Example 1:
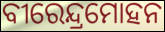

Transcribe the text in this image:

ବୀରେନ୍ଦ୍ରମୋହନ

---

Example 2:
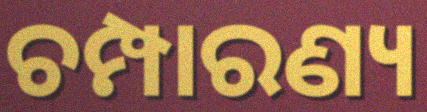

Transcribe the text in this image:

ଚମ୍ପାରଣ୍ୟ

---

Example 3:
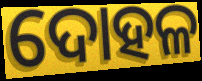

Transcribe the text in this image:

ଦୋହଳ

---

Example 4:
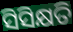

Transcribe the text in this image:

ସିସିକ୍ଷତି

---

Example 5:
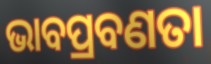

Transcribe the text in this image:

ଭାବପ୍ରବଣତା